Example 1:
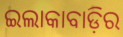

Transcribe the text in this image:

ଇଲାକାବାଡ଼ିର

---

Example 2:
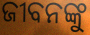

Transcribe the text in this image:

ଜୀବନଙ୍କୁ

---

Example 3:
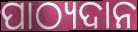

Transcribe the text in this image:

ପାଠ୍ୟଦାନ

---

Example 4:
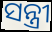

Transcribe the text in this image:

ସନ୍ତ୍ରୀ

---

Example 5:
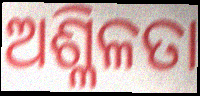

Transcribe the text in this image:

ଅଶ୍ଳିଳତା